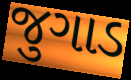
જુગાડ